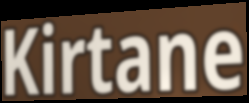
Kirtane